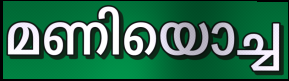
മണിയൊച്ച